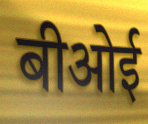
बीओई